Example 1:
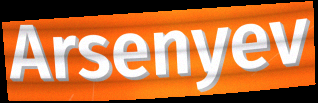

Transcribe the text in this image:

Arsenyev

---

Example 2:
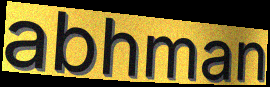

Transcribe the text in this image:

abhman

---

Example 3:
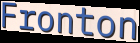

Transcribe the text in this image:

Fronton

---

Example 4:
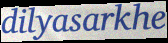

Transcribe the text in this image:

dilyasarkhe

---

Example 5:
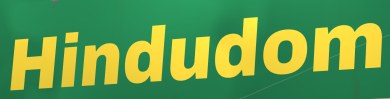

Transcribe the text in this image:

Hindudom